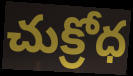
చుక్రోధ